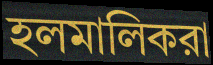
হলমালিকরা